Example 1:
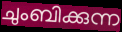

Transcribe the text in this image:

ചുംബിക്കുന്ന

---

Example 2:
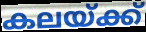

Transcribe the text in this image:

കലയ്ക്ക്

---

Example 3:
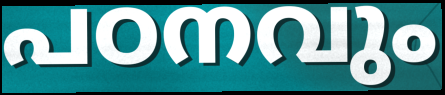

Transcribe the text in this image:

പഠനവും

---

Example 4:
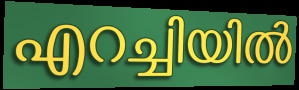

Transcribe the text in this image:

എറച്ചിയിൽ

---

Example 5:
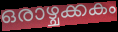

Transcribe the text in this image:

ഒരാഴ്ചക്കകം